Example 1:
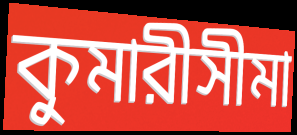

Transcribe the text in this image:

কুমারীসীমা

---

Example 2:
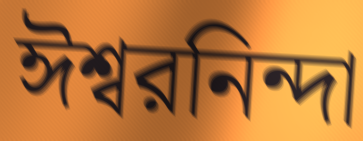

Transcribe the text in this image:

ঈশ্বরনিন্দা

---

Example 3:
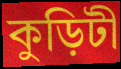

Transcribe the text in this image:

কুড়িটী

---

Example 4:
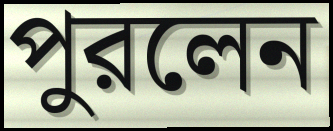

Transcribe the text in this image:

পুরলেন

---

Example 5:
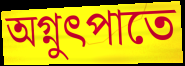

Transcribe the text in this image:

অগ্নুৎপাতে